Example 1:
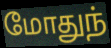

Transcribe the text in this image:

மோதுந்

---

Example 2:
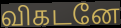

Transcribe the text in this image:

விகடனே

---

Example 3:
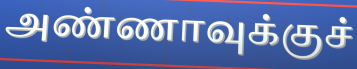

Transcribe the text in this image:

அண்ணாவுக்குச்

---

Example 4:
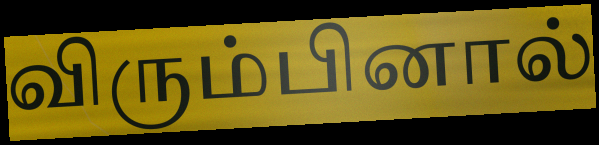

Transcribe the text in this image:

விரும்பினால்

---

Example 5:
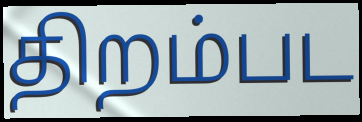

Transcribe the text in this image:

திறம்பட